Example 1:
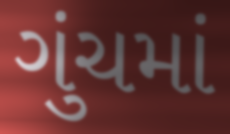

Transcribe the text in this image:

ગુંચમાં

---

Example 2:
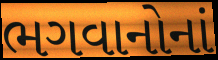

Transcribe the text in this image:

ભગવાનોનાં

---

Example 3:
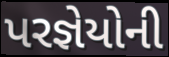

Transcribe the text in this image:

પરજ્ઞેયોની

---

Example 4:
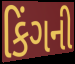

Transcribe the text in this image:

કિંગની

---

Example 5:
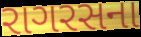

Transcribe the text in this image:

રાગરસના